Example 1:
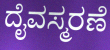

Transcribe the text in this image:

ದೈವಸ್ಮರಣೆ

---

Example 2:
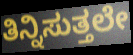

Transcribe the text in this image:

ತಿನ್ನಿಸುತ್ತಲೇ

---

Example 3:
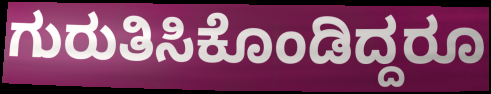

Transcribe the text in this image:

ಗುರುತಿಸಿಕೊಂಡಿದ್ದರೂ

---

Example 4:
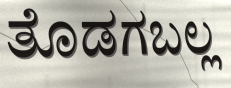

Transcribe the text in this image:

ತೊಡಗಬಲ್ಲ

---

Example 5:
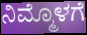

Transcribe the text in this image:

ನಿಮ್ಮೊಳಗೆ